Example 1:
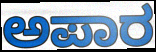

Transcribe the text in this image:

ಅಪಾರ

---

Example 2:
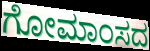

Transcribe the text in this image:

ಗೋಮಾಂಸದ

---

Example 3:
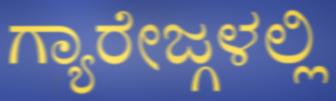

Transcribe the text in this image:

ಗ್ಯಾರೇಜ್ಗಳಲ್ಲಿ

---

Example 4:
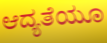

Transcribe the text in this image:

ಆದ್ಯತೆಯೂ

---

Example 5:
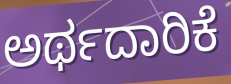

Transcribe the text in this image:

ಅರ್ಥದಾರಿಕೆ